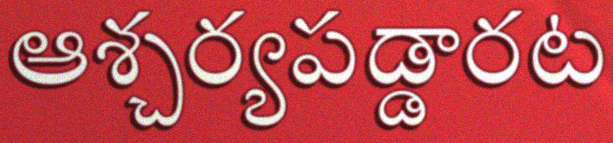
ఆశ్చర్యపడ్డారట